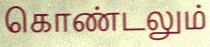
கொண்டலும்